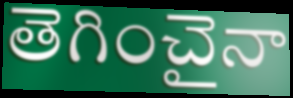
తెగించైనా